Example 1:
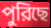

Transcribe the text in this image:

পুরিছে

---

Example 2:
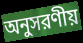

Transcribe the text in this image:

অনুসরণীয়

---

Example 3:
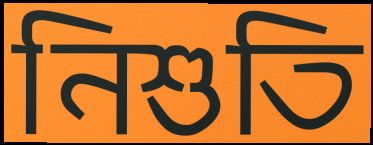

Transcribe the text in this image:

নিশুতি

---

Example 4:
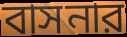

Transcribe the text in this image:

বাসনার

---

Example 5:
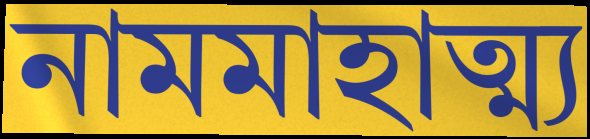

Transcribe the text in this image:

নামমাহাত্ম্য